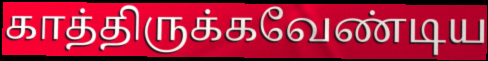
காத்திருக்கவேண்டிய